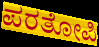
ಪರತೋಪಿ